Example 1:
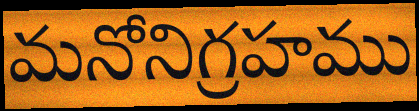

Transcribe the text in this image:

మనోనిగ్రహము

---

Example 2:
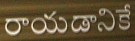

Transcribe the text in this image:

రాయడానికే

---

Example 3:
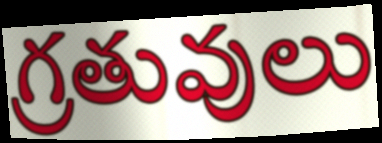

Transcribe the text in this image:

గ్రతువులు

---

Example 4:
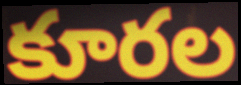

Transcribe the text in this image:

కూరల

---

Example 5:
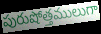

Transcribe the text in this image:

పురుషోత్తములుగా